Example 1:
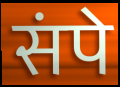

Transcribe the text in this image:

संपे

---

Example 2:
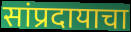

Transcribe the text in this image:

सांप्रदायाचा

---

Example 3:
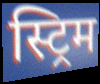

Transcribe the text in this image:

स्ट्रिम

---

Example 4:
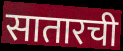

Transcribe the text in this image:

सातारची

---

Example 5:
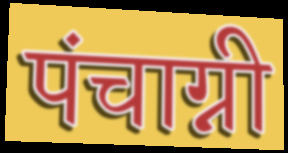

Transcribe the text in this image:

पंचाग्नी